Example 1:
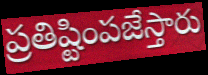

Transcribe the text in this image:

ప్రతిష్టింపజేస్తారు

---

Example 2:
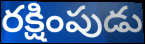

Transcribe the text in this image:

రక్షింపుడు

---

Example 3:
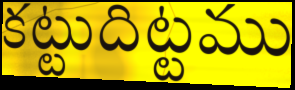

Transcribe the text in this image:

కట్టుదిట్టము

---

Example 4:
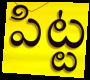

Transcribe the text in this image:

పిట్ట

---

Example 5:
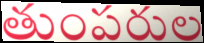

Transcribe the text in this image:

తుంపరుల